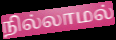
நில்லாமல்